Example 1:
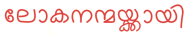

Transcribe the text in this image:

ലോകനന്മയ്ക്കായി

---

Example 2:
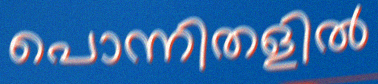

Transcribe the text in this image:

പൊന്നിതളിൽ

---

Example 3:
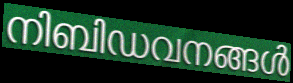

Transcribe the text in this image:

നിബിഡവനങ്ങൾ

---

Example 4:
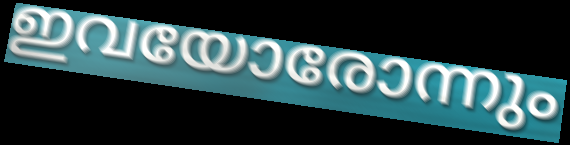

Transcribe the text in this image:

ഇവയോരോന്നും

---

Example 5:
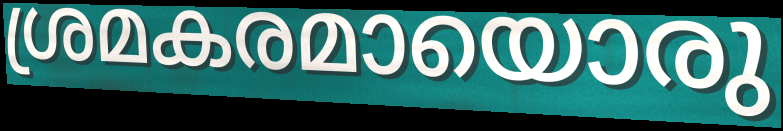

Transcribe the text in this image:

ശ്രമകരമായൊരു